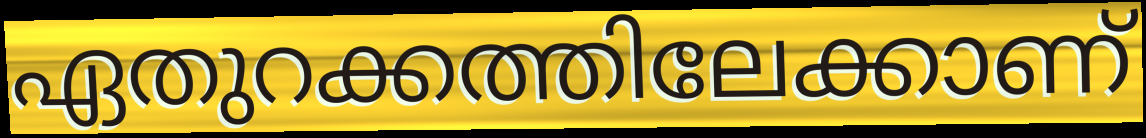
ഏതുറക്കത്തിലേക്കാണ്